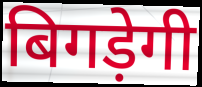
बिगड़ेगी